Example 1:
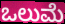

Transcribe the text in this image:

ಒಲುಮೆ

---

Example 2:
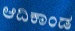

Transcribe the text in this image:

ಆದಿಕಾಂಡ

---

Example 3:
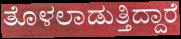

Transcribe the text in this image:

ತೊಳಲಾಡುತ್ತಿದ್ದಾರೆ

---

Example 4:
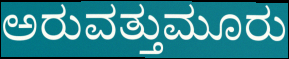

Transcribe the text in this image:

ಅರುವತ್ತುಮೂರು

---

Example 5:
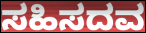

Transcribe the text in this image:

ಸಹಿಸದವ